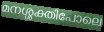
മനശ്ശക്തിപോലെ